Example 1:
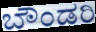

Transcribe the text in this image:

ಬೌಂಡರಿ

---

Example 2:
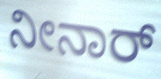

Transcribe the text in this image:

ನೀನಾರ್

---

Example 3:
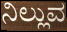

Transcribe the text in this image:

ನಿಲ್ಲುವ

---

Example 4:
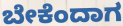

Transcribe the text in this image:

ಬೇಕೆಂದಾಗ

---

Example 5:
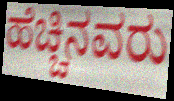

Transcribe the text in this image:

ಹೆಚ್ಚಿನವರು